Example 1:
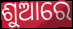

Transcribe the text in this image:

ଶୁଆରେ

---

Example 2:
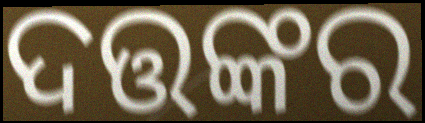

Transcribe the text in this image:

ଦତ୍ତଙ୍କର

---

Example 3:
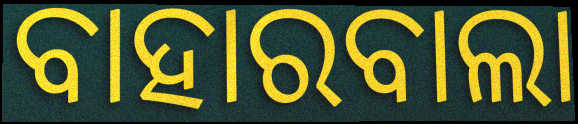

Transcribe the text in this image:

ବାହାରବାଲା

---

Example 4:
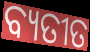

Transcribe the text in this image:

ବ୍ଯତୀତ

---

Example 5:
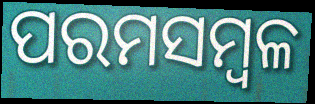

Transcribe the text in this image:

ପରମସମ୍ବଳ